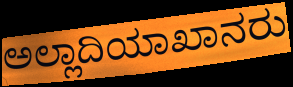
ಅಲ್ಲಾದಿಯಾಖಾನರು